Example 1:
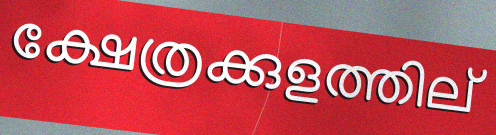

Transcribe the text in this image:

ക്ഷേത്രക്കുളത്തില്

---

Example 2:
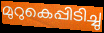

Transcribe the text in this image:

മുറുകെപ്പിടിച്ചു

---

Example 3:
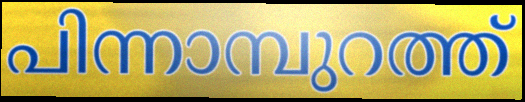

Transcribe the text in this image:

പിന്നാമ്പുറത്ത്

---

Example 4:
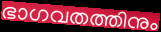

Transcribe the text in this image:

ഭാഗവതത്തിനും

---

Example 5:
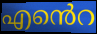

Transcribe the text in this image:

എൻെറ